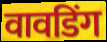
वावडिंग